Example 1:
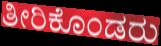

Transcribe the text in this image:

ತೀರಿಕೊಂಡರು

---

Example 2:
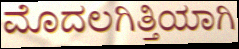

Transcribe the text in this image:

ಮೊದಲಗಿತ್ತಿಯಾಗಿ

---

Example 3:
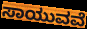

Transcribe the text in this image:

ಸಾಯುವವೆ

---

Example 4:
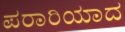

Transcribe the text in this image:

ಪರಾರಿಯಾದ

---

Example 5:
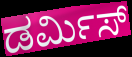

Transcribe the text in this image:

ಡರ್ಮಿಸ್